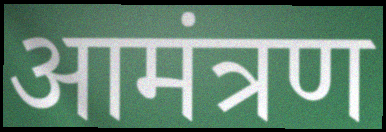
आमंत्रण